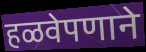
हळवेपणाने